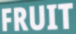
FRUIT